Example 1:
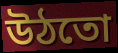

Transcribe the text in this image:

উঠতো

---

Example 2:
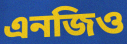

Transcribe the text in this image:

এনজিও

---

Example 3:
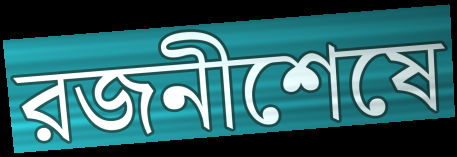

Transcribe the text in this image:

রজনীশেষে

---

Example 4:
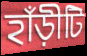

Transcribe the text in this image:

হাঁড়ীটি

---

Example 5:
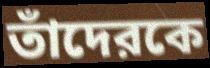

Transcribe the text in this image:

তাঁদেরকে